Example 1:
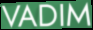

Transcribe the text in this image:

VADIM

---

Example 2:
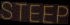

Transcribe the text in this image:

STEEP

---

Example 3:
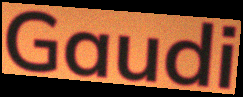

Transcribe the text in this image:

Gaudi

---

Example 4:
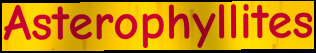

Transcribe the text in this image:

Asterophyllites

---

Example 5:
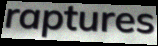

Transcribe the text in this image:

raptures